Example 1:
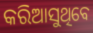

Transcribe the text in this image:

କରିଆସୁଥିବେ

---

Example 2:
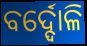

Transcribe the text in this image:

ବର୍ଦ୍ଦୋଳି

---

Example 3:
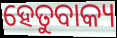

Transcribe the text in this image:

ହେତୁବାକ୍ୟ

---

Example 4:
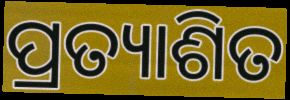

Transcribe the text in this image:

ପ୍ରତ୍ୟାଶିତ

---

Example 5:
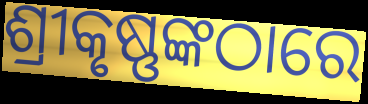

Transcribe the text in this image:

ଶ୍ରୀକୃଷ୍ଣଙ୍କଠାରେ